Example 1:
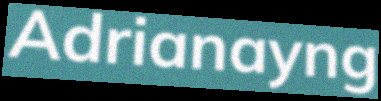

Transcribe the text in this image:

Adrianayng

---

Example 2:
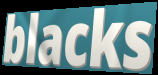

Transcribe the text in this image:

blacks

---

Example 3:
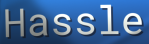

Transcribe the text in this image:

Hassle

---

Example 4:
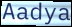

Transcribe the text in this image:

Aadya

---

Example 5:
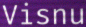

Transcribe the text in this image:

Visnu